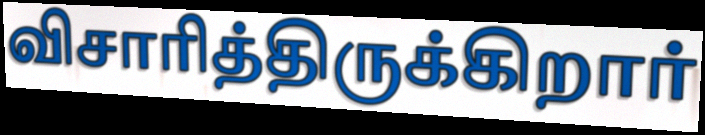
விசாரித்திருக்கிறார்